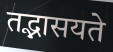
तद्भासयते